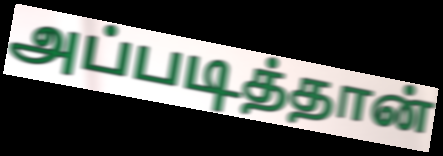
அப்படித்தான்